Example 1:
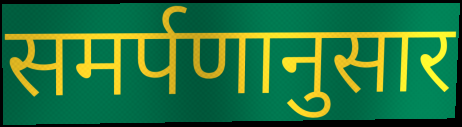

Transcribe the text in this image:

समर्पणानुसार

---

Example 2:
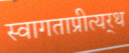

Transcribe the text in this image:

स्वागताप्रीत्यर्थ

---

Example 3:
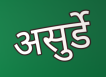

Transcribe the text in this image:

असुर्डे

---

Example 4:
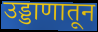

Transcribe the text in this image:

उड्डाणातून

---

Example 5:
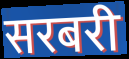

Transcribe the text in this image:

सरबरी